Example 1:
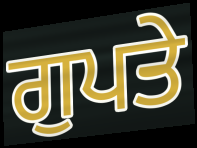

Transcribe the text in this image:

ਗੁਪਤੇ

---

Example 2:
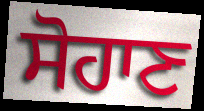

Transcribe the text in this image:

ਸੋਹਾਣ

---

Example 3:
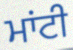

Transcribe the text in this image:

ਮਾਂਟੀ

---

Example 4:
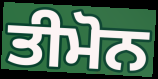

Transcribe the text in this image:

ਤੀਮੋਨ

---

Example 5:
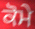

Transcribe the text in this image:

ਕੋਮੇ